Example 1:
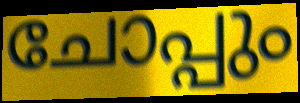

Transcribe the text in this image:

ചോപ്പും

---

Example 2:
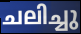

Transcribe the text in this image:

ചലിച്ചു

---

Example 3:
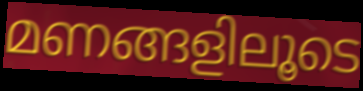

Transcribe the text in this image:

മണങ്ങളിലൂടെ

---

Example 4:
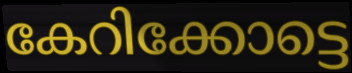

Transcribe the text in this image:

കേറിക്കോട്ടെ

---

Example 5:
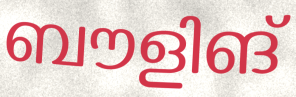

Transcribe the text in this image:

ബൗളിങ്